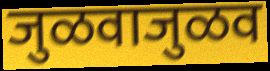
जुळवाजुळव